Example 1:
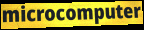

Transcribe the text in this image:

microcomputer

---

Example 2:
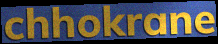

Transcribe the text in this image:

chhokrane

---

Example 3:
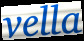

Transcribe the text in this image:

vella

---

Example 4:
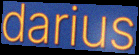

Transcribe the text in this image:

darius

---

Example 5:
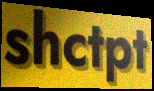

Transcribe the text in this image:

shctpt